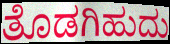
ತೊಡಗಿಹುದು